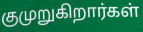
குமுறுகிறார்கள்